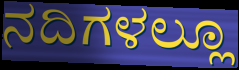
ನದಿಗಳಲ್ಲೂ